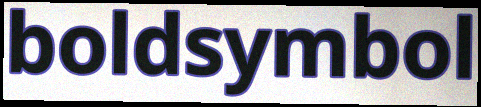
boldsymbol